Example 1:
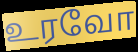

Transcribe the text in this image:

உரவோ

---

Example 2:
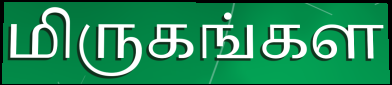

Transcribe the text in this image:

மிருகங்கள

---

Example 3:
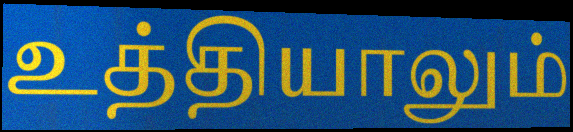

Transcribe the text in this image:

உத்தியாலும்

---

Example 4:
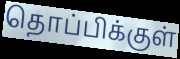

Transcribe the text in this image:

தொப்பிக்குள்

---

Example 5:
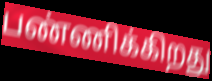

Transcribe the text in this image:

பண்ணிக்கிறது